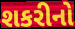
શકરીનો